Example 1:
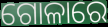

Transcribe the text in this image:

ଗୋଳାରେ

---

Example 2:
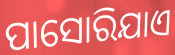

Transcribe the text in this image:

ପାସୋରିଯାଏ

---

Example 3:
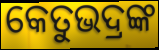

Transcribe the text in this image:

କେତୁଭଦ୍ରଙ୍କ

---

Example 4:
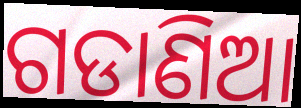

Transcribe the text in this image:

ଗଡାଣିଆ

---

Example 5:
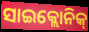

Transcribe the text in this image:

ସାଇକ୍ଲୋନିକ୍